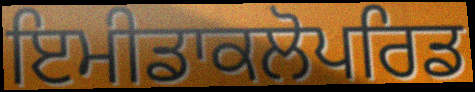
ਇਮੀਡਾਕਲੋਪਰਿਡ